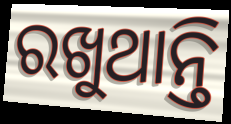
ରଖୁଥାନ୍ତି